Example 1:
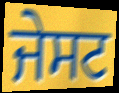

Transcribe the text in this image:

ਜੇਸਟ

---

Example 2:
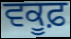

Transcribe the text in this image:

ਵਕੂਫ਼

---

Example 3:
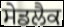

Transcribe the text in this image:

ਸੇਡਲੈਕ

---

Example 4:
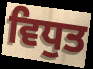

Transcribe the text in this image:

ਵਿਧੁਤ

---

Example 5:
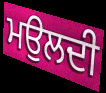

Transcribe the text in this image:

ਮਉਲਦੀ